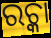
ରଚ୍କା